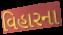
વિહારના